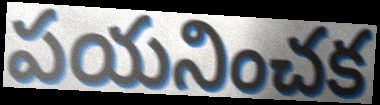
పయనించక